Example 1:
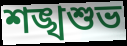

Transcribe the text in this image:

শঙ্খশুভ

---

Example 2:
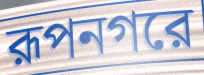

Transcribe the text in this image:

রূপনগরে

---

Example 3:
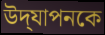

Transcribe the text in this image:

উদ্‌যাপনকে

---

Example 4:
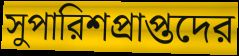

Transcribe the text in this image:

সুপারিশপ্রাপ্তদের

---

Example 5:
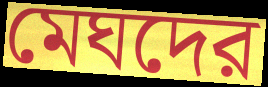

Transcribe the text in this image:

মেঘদের